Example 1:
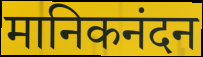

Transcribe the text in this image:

मानिकनंदन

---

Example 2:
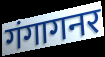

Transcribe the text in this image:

गंगागनर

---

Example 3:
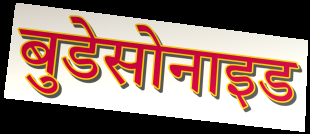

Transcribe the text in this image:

बुडेसोनाइड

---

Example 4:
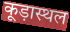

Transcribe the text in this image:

कूड़ास्थल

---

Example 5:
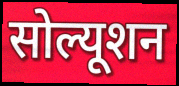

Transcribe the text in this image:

सोल्यूशन